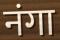
नंगा